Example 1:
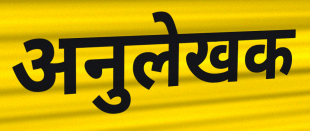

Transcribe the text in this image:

अनुलेखक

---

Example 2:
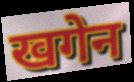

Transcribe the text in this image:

खगेन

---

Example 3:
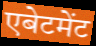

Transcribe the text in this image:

एबेटमेंट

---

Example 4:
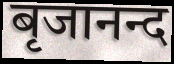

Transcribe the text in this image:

बृजानन्द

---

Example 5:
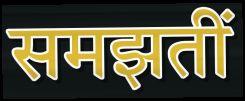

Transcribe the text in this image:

समझतीं